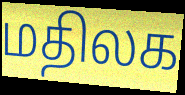
மதிலக